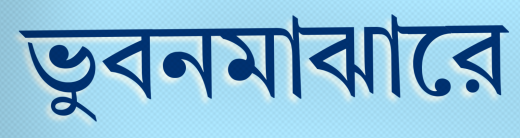
ভুবনমাঝারে